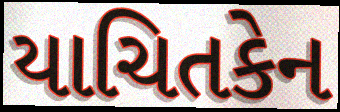
યાચિતકેન